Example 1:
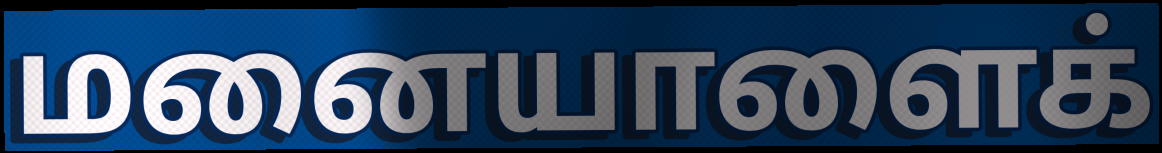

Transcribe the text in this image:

மனையாளைக்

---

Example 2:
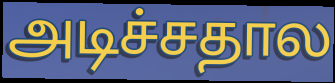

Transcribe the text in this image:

அடிச்சதால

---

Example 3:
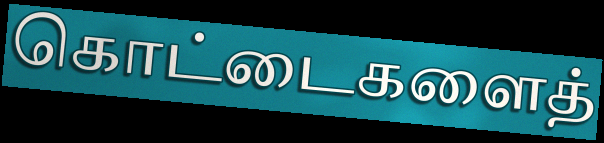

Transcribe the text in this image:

கொட்டைகளைத்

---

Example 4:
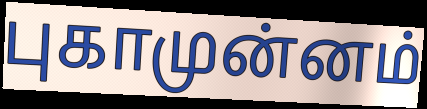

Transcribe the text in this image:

புகாமுன்னம்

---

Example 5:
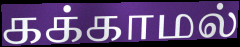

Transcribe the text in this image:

கக்காமல்